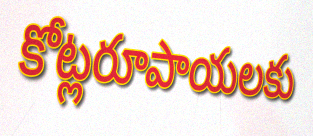
కోట్లరూపాయలకు